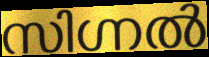
സിഗ്നൽ